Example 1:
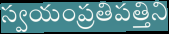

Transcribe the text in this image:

స్వయంప్రతిపత్తిని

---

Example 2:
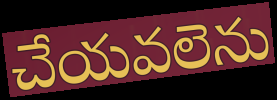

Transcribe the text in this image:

చేయవలెను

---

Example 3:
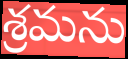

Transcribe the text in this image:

శ్రమను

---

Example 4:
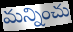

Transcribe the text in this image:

మన్నించు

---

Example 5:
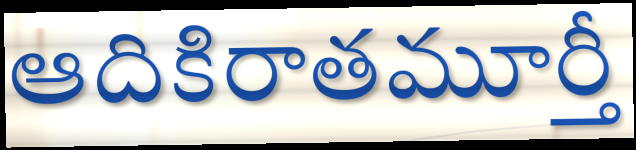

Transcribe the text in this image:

ఆదికిరాతమూర్తీ